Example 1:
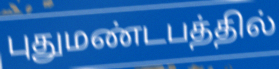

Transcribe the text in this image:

புதுமண்டபத்தில்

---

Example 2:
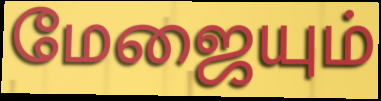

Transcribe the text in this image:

மேஜையும்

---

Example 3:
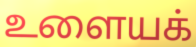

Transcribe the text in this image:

உளையக்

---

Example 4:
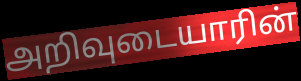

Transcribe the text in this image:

அறிவுடையாரின்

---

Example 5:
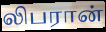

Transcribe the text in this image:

லிபரான்